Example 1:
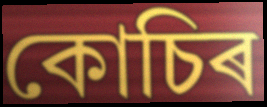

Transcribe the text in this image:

কোচিৰ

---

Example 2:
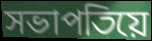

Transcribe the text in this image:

সভাপতিয়ে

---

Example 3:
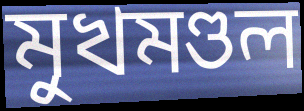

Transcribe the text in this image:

মুখমণ্ডল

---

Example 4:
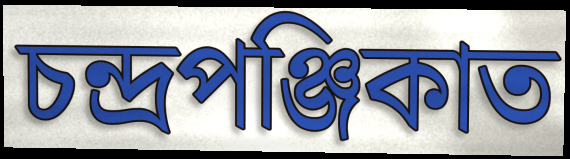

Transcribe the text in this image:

চন্দ্ৰপঞ্জিকাত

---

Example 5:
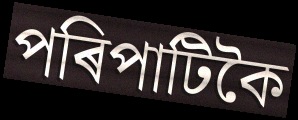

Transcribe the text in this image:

পৰিপাটিকৈ